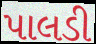
પાલડી